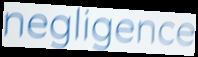
negligence